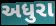
અધુરા